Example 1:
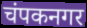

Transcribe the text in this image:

चंपकनगर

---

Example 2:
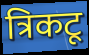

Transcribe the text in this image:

त्रिकटू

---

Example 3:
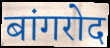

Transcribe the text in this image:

बांगरोद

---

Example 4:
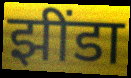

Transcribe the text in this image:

झींडा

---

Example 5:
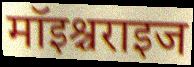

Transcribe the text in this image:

मॉइश्चराइज